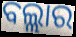
ବଲ୍ଲାର